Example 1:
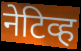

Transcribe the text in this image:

नेटिव्ह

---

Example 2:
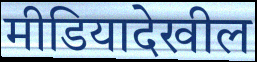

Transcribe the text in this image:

मीडियादेखील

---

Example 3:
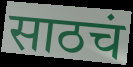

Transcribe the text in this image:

साठचं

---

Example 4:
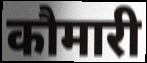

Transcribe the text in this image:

कौमारी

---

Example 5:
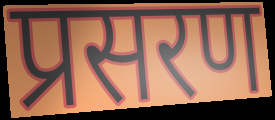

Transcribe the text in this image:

प्रसरण